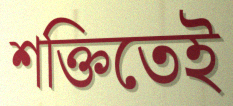
শক্তিতেই